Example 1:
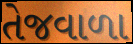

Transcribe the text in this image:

તેજવાળા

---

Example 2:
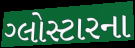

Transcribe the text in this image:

ગ્લોસ્ટારના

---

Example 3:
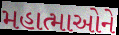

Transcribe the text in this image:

મહાત્માઓને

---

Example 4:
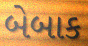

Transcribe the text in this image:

બેબાક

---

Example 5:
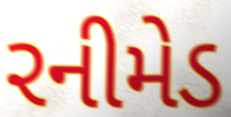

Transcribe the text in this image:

રનીમેડ